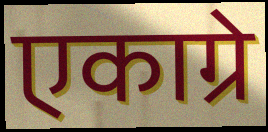
एकाग्रे